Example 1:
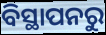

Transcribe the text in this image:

ବିସ୍ଥାପନରୁ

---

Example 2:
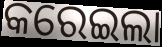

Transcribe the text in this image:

କରେଇଲା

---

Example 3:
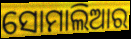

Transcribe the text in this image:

ସୋମାଲିଆର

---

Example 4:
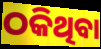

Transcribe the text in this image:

ଠକିଥିବା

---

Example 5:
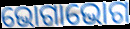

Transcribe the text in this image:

ଭୋଗାଭୋଗ